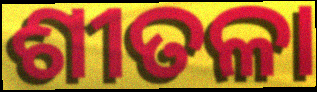
ଶୀତଳା